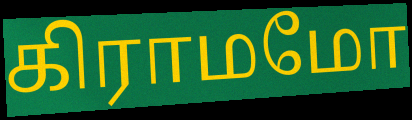
கிராமமோ